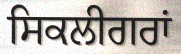
ਸਿਕਲੀਗਰਾਂ